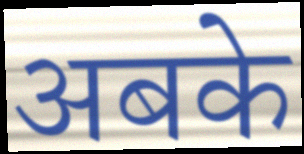
अबके